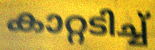
കാറ്റടിച്ച്